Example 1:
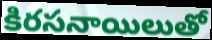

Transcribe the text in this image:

కిరసనాయిలుతో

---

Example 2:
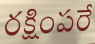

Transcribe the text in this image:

రక్షింపరే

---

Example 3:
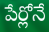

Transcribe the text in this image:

పేర్లోనే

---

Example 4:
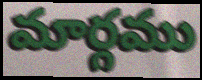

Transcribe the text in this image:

మార్గము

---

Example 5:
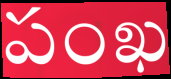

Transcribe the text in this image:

పంఖ